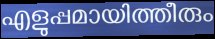
എളുപ്പമായിത്തീരും